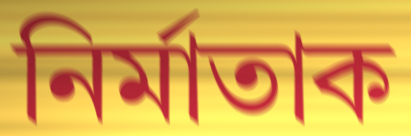
নিৰ্মাতাক